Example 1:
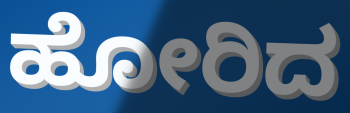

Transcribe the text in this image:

ಹೋರಿದ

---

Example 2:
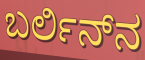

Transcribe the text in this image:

ಬರ್ಲಿನ್‍ನ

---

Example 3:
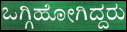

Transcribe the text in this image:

ಒಗ್ಗಿಹೋಗಿದ್ದರು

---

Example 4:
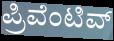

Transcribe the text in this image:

ಪ್ರಿವೆಂಟಿವ್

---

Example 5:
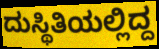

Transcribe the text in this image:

ದುಸ್ಥಿತಿಯಲ್ಲಿದ್ದ